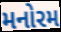
મનોરમ